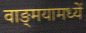
वाङ्‌मयामध्यें